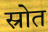
स्रोत